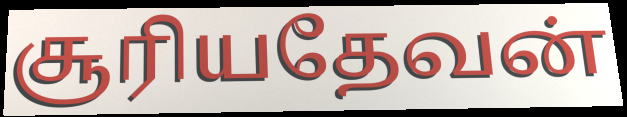
சூரியதேவன்